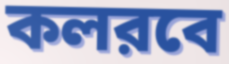
কলরবে